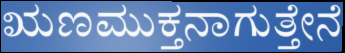
ಋಣಮುಕ್ತನಾಗುತ್ತೇನೆ